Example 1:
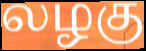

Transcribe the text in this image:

லழகு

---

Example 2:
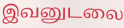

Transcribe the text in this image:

இவனுடலை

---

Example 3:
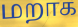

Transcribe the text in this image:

மறாக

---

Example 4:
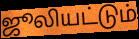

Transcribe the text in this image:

ஜூலியட்டும்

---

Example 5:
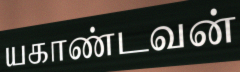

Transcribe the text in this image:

யகாண்டவன்